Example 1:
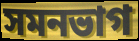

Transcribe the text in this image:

সমনভাগ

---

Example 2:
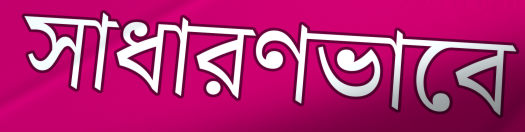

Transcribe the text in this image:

সাধারণভাবে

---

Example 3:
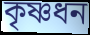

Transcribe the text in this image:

কৃষ্ণধন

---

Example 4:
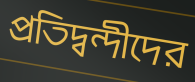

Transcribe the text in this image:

প্রতিদ্বন্দীদের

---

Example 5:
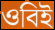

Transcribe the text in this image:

ওবিই